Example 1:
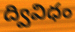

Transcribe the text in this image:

ద్వివిధం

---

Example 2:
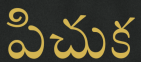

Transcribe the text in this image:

పిచుక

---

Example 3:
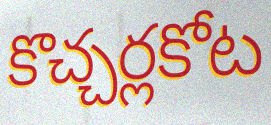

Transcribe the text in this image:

కొచ్చర్లకోట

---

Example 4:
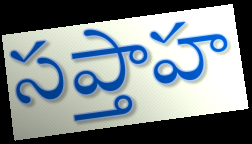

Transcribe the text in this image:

సప్తాహ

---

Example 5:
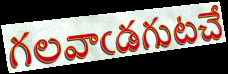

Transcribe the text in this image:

గలవాఁడగుటచే